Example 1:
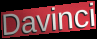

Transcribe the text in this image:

Davinci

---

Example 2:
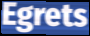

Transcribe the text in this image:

Egrets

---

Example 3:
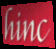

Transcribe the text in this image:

hinc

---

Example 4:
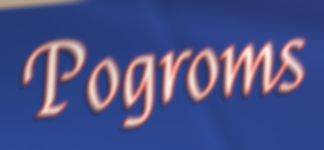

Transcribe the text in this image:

Pogroms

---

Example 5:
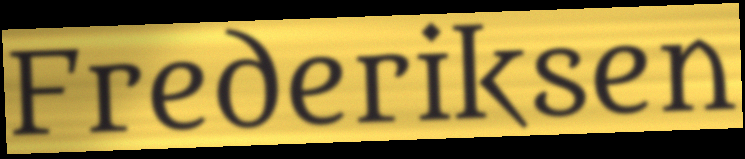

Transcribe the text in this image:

Frederiksen